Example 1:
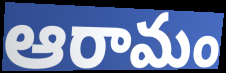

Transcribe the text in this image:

ఆరామం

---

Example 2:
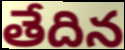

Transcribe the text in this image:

తేదిన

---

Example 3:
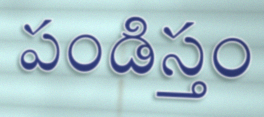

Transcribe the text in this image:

పండిస్తం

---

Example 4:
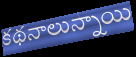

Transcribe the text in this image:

కథనాలున్నాయి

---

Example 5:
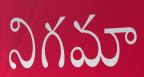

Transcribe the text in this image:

నిగమా